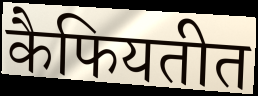
कैफियतीत